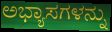
ಅಭ್ಯಾಸಗಳನ್ನು